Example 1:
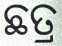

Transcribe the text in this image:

ଛତ୍ର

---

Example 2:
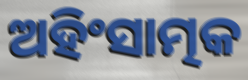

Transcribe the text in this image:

ଅହିଂସାତ୍ମକ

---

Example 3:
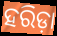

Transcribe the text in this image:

ହରିଡ଼ା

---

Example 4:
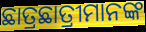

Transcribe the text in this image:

ଛାତ୍ରଛାତ୍ରୀମାନଙ୍କ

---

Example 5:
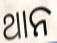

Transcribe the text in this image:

ଥାନ